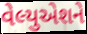
વેલ્યુએશને